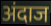
अंदाज